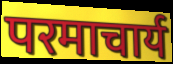
परमाचार्य